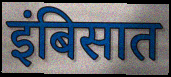
इंबिसात